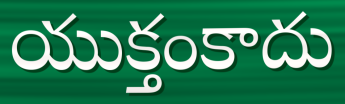
యుక్తంకాదు